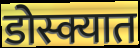
डोस्क्यात